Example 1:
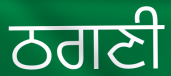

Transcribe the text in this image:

ਠਗਣੀ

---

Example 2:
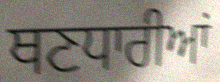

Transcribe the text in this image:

ਥਣਧਾਰੀਆਂ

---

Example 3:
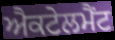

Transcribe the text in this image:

ਐਕਟੇਲਮੈਂਟ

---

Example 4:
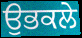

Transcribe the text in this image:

ਉਭਕਲੇ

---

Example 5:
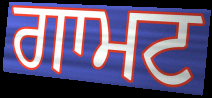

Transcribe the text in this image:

ਗਾਮਟ